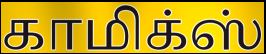
காமிக்ஸ்